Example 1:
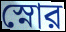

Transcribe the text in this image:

স্নোর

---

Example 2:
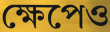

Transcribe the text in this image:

ক্ষেপেও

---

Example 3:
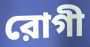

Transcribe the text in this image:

রোগী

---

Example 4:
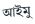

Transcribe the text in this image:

আইমু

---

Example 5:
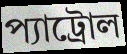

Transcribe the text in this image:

প্যাট্রোল